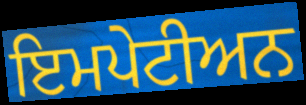
ਇਮਪੇਟੀਅਨ